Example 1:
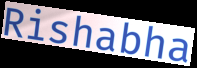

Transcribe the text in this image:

Rishabha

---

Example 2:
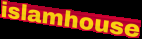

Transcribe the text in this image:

islamhouse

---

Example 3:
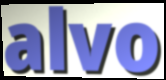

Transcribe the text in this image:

alvo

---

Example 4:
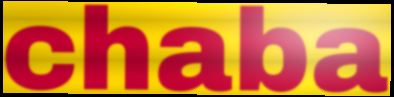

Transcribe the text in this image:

chaba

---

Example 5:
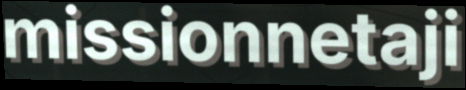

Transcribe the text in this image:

missionnetaji